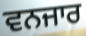
ਵਨਜਾਰ